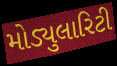
મોડ્યુલારિટી